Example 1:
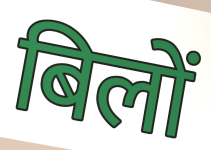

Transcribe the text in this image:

बिलों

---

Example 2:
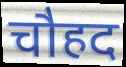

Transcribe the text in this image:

चौहद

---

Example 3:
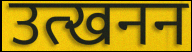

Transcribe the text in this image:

उत्‍खनन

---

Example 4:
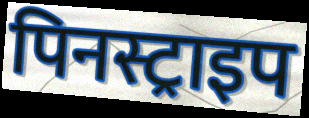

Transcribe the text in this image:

पिनस्ट्राइप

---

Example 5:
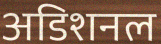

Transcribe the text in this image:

अडिशनल